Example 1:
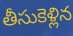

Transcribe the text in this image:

తీసుకెళ్లిన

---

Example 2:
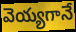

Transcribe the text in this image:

వెయ్యగానే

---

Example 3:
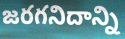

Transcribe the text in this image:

జరగనిదాన్ని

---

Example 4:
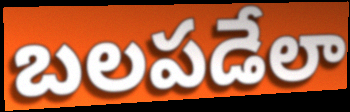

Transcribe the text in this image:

బలపడేలా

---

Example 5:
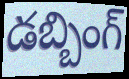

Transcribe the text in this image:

డబ్బింగ్